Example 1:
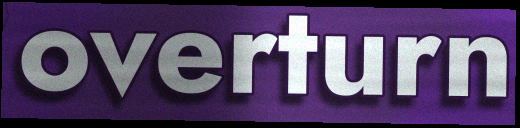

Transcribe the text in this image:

overturn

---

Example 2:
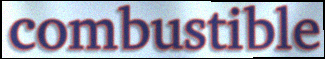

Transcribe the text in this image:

combustible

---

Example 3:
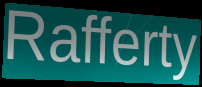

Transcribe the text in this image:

Rafferty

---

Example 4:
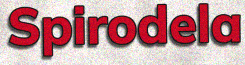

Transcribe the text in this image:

Spirodela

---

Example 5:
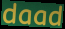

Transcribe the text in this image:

daad